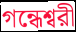
গন্ধেশ্বরী